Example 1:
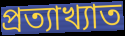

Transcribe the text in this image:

প্রত্যাখ্যাত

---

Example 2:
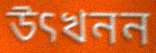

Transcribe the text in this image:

উৎখনন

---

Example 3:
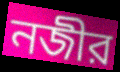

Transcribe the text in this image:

নজীর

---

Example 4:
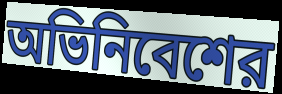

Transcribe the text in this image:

অভিনিবেশের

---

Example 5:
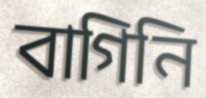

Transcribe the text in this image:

বাগিনি